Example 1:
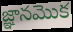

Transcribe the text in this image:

జ్ఞానమొక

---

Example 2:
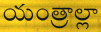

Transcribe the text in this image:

యంత్రాల్లా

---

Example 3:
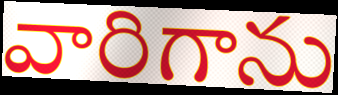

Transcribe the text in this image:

వారిగాను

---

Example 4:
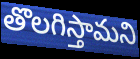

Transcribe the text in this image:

తొలగిస్తామని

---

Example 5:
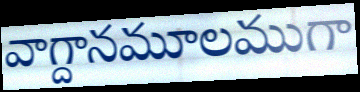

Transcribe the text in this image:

వాగ్దానమూలముగా